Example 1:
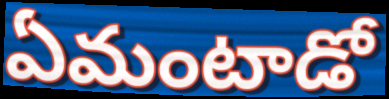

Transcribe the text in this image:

ఏమంటాడో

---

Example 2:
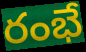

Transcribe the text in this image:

రంభే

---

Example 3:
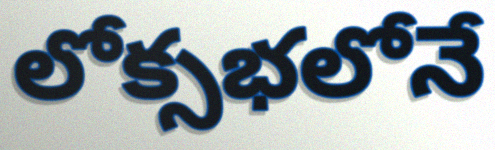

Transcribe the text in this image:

లోక్సభలోనే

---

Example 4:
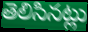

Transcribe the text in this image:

తెలిసినట్లు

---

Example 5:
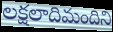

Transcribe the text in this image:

లక్షలాదిమందిని